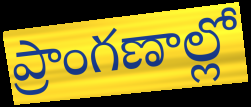
ప్రాంగణాల్లో